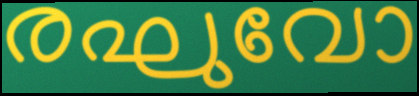
രഘുവോ